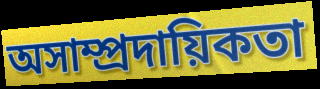
অসাম্প্রদায়িকতা